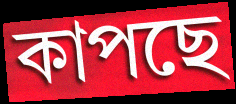
কাপছে